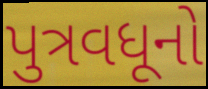
પુત્રવધૂનો